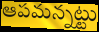
ఆపమన్నట్టు